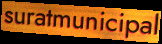
suratmunicipal